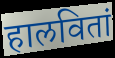
हालवितां